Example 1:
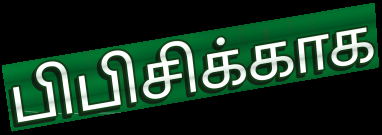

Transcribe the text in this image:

பிபிசிக்காக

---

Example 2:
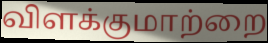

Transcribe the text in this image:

விளக்குமாற்றை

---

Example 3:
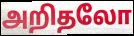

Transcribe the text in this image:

அறிதலோ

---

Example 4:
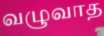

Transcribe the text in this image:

வழுவாத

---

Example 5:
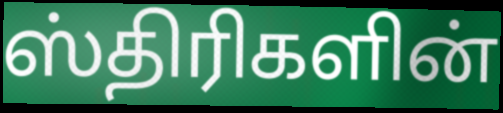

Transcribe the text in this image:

ஸ்திரிகளின்